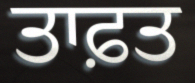
ਤਾਫ਼ਤ